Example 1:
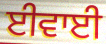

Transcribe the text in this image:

ਈਵਾਈ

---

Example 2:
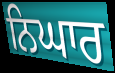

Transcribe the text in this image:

ਨਿਘਾਰ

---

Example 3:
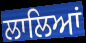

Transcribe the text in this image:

ਲਾਲਿਆਂ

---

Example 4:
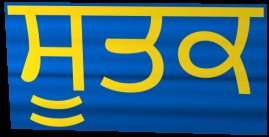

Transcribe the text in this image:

ਸੂਤਕ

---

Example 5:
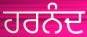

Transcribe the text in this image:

ਹਰਨੰਦ